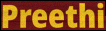
Preethi